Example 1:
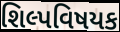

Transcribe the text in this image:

શિલ્પવિષયક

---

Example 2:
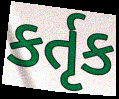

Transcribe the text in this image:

કર્તૃક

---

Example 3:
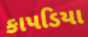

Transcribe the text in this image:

કાપડિયા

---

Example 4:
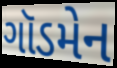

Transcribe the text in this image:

ગૉડમેન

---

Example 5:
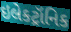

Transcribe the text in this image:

ઇલેકટ્રૉનિક